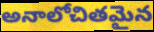
అనాలోచితమైన